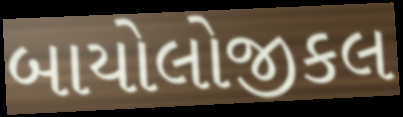
બાયોલોજીકલ